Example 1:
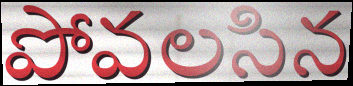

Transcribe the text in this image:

పోవలసిన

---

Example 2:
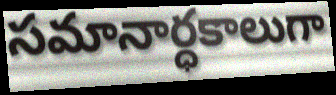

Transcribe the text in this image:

సమానార్ధకాలుగా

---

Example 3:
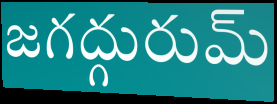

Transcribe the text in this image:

జగద్గురుమ్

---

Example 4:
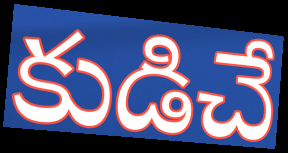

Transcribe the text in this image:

కుడిచే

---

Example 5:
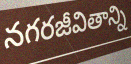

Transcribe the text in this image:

నగరజీవితాన్ని